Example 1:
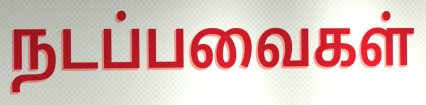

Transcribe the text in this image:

நடப்பவைகள்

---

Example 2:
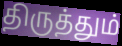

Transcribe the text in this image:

திருத்தும்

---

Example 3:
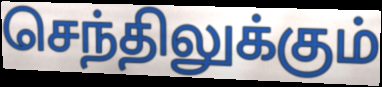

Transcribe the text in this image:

செந்திலுக்கும்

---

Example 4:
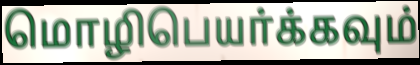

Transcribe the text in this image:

மொழிபெயர்க்கவும்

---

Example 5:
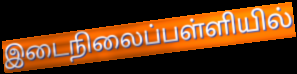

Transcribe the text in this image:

இடைநிலைப்பள்ளியில்